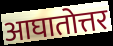
आघातोत्तर